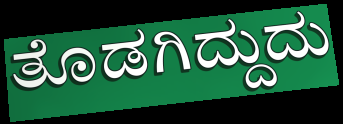
ತೊಡಗಿದ್ದುದು